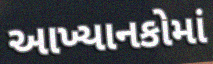
આખ્યાનકોમાં